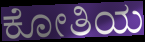
ಕೋತಿಯ